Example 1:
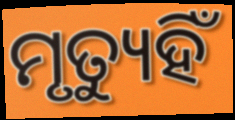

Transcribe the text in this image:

ମୃତ୍ୟୁହିଁ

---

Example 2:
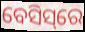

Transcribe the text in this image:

ବେସିସ୍‌ରେ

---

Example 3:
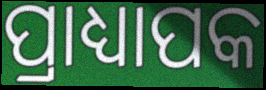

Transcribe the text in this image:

ପ୍ରାଧ୍ୟାପକ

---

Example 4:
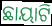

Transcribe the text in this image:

ଛାୟାଟି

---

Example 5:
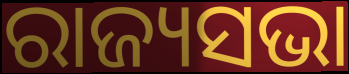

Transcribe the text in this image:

ରାଜ୍ୟସଭା